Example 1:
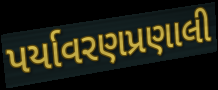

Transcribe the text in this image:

પર્યાવરણપ્રણાલી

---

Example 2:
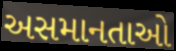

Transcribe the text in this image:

અસમાનતાઓ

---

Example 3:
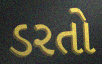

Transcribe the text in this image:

ડરતો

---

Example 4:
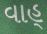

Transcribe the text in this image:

વાહ્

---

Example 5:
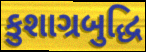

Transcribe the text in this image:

કુશાગ્રબુદ્ધિ